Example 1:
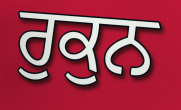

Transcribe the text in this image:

ਰੁਕੁਨ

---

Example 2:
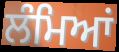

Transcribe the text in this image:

ਲੰਮਿਆਂ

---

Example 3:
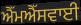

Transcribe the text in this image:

ਐੱਮਐੱਸਵਾਈ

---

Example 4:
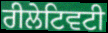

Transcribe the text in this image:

ਰੀਲੇਟਿਵਟੀ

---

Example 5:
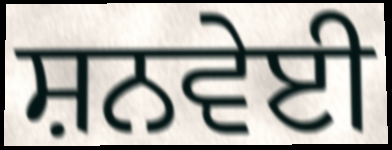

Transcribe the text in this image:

ਸ਼ਨਵੇਈ